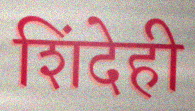
शिंदेही